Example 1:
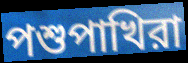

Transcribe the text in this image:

পশুপাখিরা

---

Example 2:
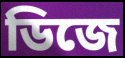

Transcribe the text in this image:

ডিজে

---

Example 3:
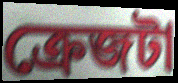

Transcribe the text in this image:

ক্রেজটা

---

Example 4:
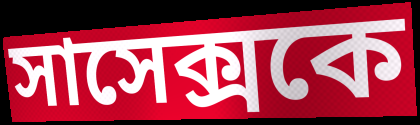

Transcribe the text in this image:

সাসেক্সকে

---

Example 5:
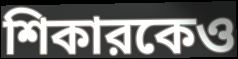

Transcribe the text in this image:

শিকারকেও